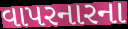
વાપરનારના